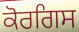
ਕੋਰਗਿਸ